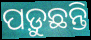
ପଡ଼ୁଛନ୍ତି